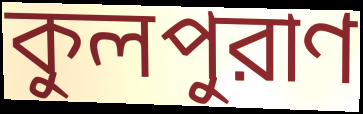
কুলপুরাণ